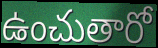
ఉంచుతారో